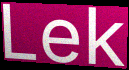
Lek